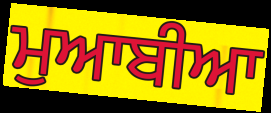
ਮੁਆਬੀਆ